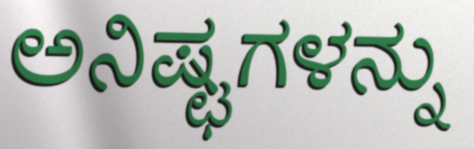
ಅನಿಷ್ಟಗಳನ್ನು